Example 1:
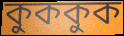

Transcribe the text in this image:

কুককুক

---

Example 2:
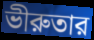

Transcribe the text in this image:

ভীরুতার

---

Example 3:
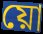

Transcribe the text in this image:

য়ো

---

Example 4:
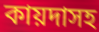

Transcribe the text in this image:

কায়দাসহ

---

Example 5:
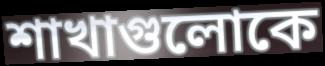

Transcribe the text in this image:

শাখাগুলোকে